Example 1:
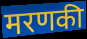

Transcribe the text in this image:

मरणकी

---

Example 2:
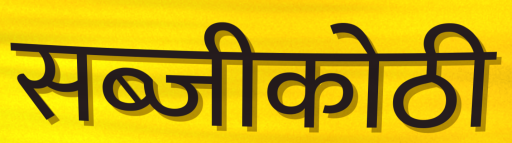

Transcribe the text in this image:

सब्जीकोठी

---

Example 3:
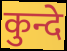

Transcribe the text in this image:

कुन्दे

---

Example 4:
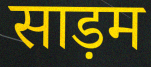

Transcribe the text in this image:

साड़म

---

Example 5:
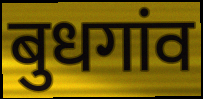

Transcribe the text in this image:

बुधगांव